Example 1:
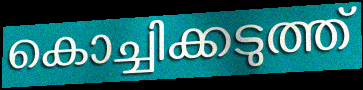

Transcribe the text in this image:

കൊച്ചിക്കടുത്ത്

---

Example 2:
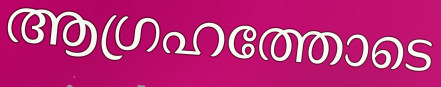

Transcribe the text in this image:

ആഗ്രഹത്തോടെ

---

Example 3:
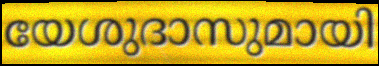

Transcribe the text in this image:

യേശുദാസുമായി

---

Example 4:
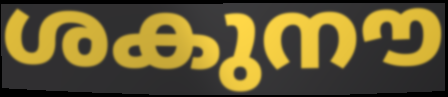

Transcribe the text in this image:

ശകുനൗ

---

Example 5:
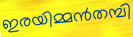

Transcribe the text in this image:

ഇരയിമ്മൻതമ്പി